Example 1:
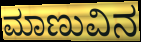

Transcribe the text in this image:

ಮಾಣುವಿನ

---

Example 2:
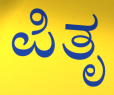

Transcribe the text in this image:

ಪಿತೃ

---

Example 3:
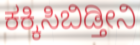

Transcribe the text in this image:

ಕಕ್ಕಿಸಿಬಿಡ್ತೀನಿ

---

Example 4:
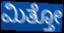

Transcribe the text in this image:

ಮಿತ್ತೋ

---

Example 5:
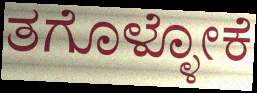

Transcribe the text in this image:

ತಗೊಳ್ಳೋಕೆ